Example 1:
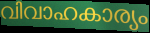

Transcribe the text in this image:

വിവാഹകാര്യം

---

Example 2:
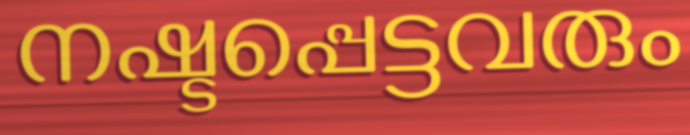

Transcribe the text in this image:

നഷ്ടപ്പെട്ടവരും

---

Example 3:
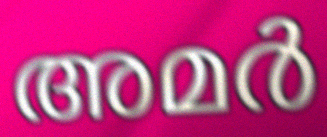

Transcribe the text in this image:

അമർ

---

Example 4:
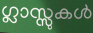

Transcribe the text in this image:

ഗ്ലാസ്സുകൾ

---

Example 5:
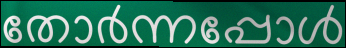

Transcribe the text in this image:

തോർന്നപ്പോൾ